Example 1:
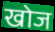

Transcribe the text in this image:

खोज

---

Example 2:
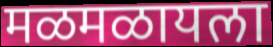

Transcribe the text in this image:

मळमळायला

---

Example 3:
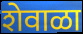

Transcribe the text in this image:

शेवाळा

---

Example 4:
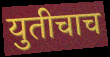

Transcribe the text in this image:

युतीचाच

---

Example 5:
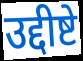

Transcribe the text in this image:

उद्दीष्टे